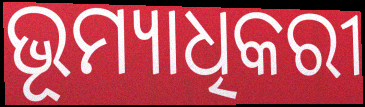
ଭୂମ୍ୟାଧିକରୀ